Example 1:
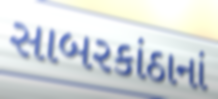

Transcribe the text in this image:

સાબરકાંઠાનાં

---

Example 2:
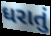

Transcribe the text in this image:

ધરાતું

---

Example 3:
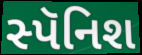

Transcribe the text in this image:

સ્પૅનિશ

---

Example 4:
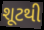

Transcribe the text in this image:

શૂટથી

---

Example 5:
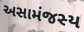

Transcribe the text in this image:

અસામંજસ્ય